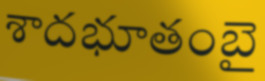
శాదభూతంబై